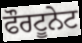
ਫੌਰਟੂਨੇਟ